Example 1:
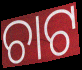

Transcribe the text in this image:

ଚାଟ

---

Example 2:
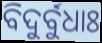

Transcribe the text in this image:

ବିଦୁର୍ବୁଧାଃ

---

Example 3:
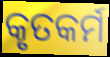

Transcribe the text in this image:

କୃତକର୍ମ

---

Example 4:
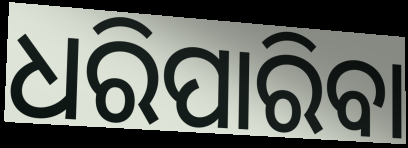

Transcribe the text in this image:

ଧରିପାରିବା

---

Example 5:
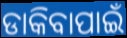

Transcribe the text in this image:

ଡାକିବାପାଇଁ